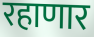
रहाणार